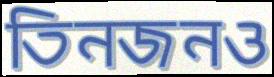
তিনজনও